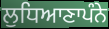
ਲੁਧਿਆਣਾਪੰਨੇ